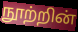
நூற்றின்